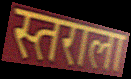
स्तराला